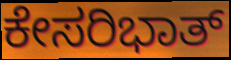
ಕೇಸರಿಭಾತ್